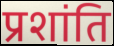
प्रशांति